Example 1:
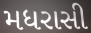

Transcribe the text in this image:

મધરાસી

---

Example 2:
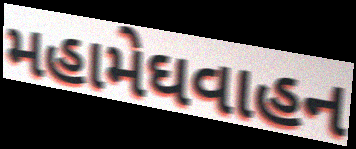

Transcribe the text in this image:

મહામેઘવાહન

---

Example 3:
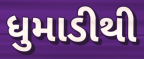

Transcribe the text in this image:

ધુમાડીથી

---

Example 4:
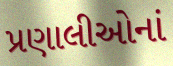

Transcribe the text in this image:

પ્રણાલીઓનાં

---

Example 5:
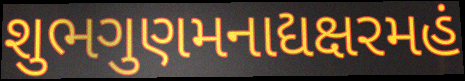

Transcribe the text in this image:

શુભગુણમનાદ્યક્ષરમહં